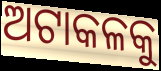
ଅଟାକଳକୁ